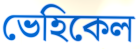
ভেহিকেল